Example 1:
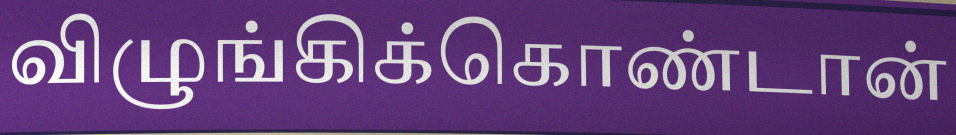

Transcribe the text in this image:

விழுங்கிக்கொண்டான்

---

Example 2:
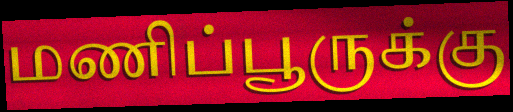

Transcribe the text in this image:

மணிப்பூருக்கு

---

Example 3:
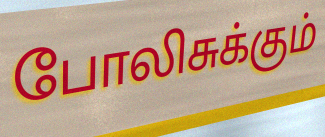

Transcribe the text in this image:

போலிசுக்கும்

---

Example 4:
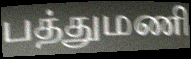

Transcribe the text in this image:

பத்துமணி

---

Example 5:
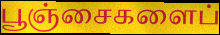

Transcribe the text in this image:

பூஞ்சைகளைப்